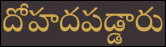
దోహదపడ్డారు